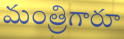
మంత్రిగారూ